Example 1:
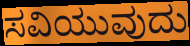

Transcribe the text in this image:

ಸವಿಯುವುದು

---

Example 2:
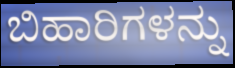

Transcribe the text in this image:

ಬಿಹಾರಿಗಳನ್ನು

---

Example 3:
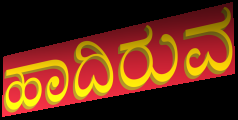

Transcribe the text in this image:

ಹಾದಿರುವ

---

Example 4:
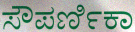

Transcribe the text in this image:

ಸೌಪರ್ಣಿಕಾ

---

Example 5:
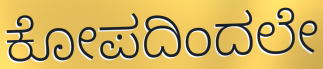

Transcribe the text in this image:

ಕೋಪದಿಂದಲೇ